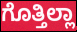
ಗೊತ್ತಿಲ್ಲಾ